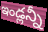
ఇండ్లన్నీ